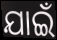
ଯାଇଁ